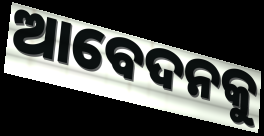
ଆବେଦନକୁ